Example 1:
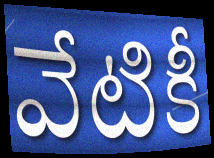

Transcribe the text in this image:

వేటికీ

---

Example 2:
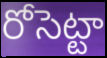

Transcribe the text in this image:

రోసెట్టా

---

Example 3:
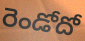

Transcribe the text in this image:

రెండోదో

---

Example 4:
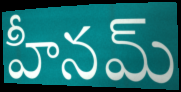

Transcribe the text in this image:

హీనమ్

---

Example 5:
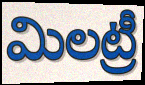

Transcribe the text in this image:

మిలట్రీ